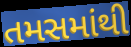
તમસમાંથી